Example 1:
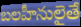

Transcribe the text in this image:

బలహీనులైతే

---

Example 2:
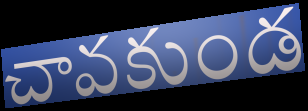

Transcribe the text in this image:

చావకుండ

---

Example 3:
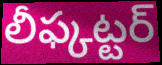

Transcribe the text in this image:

లీఫ్కట్టర్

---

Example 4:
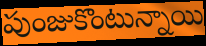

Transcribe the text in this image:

పుంజుకొంటున్నాయి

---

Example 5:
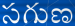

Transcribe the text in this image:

సగుణ